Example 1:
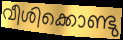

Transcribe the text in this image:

വീശിക്കൊണ്ടു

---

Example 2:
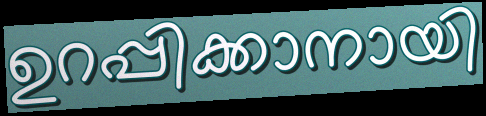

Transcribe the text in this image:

ഉറപ്പിക്കാനായി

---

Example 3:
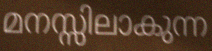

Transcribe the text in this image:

മനസ്സിലാകുന്ന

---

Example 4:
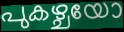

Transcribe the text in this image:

പുകഴ്ചയോ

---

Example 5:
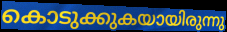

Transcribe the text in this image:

കൊടുക്കുകയായിരുന്നു